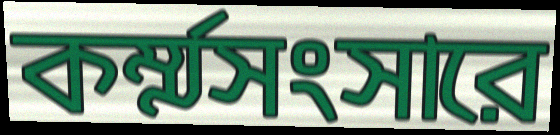
কর্ম্মসংসারে